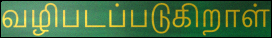
வழிபடப்படுகிறாள்